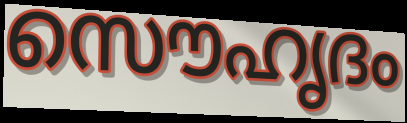
സൌഹൃദം